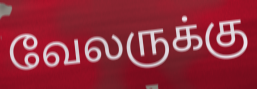
வேலருக்கு